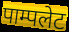
पाम्पलेट